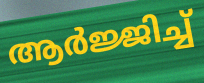
ആർജ്ജിച്ച്